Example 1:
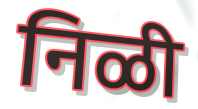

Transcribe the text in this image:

निळी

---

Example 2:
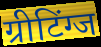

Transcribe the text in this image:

ग्रीटिंग्ज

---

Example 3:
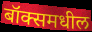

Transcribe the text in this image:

बॉक्समधील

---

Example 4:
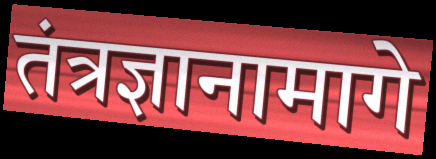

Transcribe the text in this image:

तंत्रज्ञानामागे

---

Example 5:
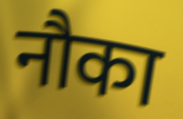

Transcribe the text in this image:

नौका